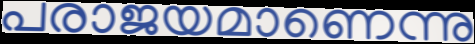
പരാജയമാണെന്നു